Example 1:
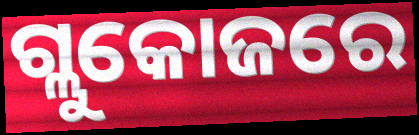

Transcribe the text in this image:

ଗ୍ଲୁକୋଜରେ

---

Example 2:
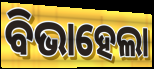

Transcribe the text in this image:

ବିଭାହେଲା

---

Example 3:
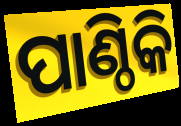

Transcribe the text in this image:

ପାଣ୍ଠିକି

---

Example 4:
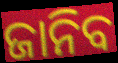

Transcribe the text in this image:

ଜାନିବ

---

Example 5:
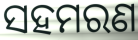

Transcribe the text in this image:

ସହମରଣ